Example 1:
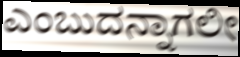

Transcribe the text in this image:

ಎಂಬುದನ್ನಾಗಲೀ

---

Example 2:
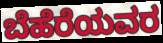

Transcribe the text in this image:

ಬೆಹೆರೆಯವರ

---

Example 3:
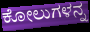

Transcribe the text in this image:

ಕೋಲುಗಳನ್ನ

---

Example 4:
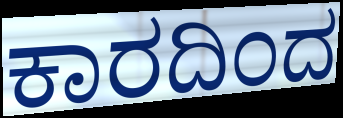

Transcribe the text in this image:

ಕಾರದಿಂದ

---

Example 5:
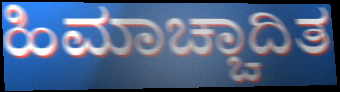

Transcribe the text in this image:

ಹಿಮಾಚ್ಚಾದಿತ